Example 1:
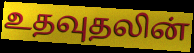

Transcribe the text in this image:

உதவுதலின்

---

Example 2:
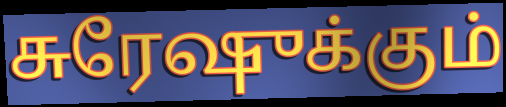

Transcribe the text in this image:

சுரேஷுக்கும்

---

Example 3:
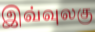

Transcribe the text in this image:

இவ்வுலகு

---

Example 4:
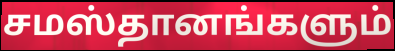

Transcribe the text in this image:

சமஸ்தானங்களும்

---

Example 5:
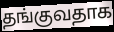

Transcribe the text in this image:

தங்குவதாக